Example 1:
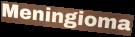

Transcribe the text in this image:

Meningioma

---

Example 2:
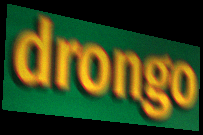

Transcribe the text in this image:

drongo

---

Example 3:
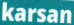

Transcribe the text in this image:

karsan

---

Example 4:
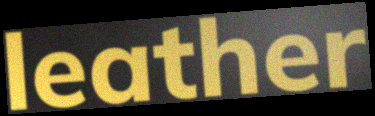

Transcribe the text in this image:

leather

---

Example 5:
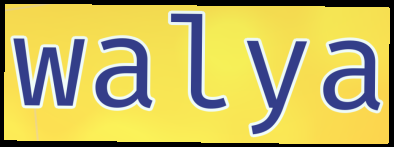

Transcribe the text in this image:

walya